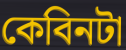
কেবিনটা